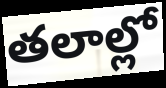
తలాల్లో